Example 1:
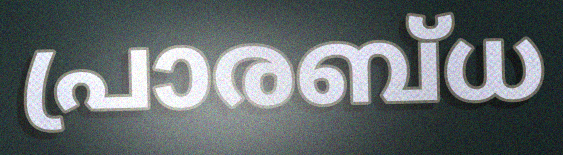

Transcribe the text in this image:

പ്രാരബ്ധ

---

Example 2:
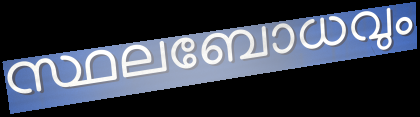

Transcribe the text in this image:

സ്ഥലബോധവും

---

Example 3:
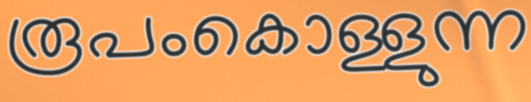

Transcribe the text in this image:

രൂപംകൊള്ളുന്ന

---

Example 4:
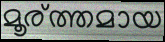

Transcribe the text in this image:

മൂര്ത്തമായ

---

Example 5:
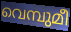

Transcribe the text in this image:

വെമ്പുമീ